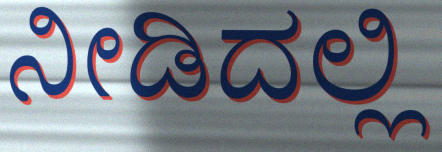
ನೀಡಿದಲ್ಲಿ